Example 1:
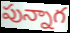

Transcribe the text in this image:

పున్నాగ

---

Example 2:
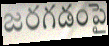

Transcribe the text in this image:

జరగడంపై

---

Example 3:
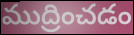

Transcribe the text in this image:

ముద్రించడం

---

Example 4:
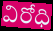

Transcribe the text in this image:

విరోధి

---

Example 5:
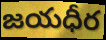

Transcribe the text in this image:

జయధీర